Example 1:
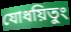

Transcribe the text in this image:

যোধয়িতুং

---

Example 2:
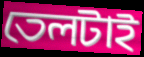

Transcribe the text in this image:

তেলটাই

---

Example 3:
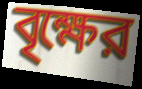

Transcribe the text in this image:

বৃক্ষের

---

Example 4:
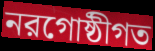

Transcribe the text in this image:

নরগোষ্ঠীগত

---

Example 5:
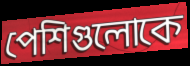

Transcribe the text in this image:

পেশিগুলোকে